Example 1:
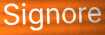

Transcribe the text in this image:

Signore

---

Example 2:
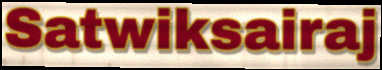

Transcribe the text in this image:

Satwiksairaj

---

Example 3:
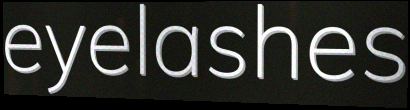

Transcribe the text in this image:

eyelashes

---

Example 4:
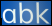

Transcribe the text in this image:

abk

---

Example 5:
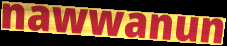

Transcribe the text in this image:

nawwanun